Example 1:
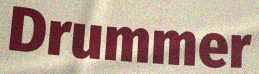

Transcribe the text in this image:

Drummer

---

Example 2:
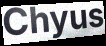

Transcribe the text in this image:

Chyus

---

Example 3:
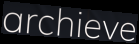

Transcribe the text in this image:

archieve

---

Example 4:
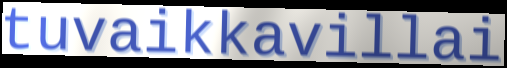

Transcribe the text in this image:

tuvaikkavillai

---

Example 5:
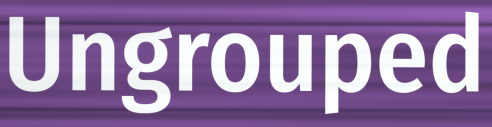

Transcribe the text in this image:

Ungrouped